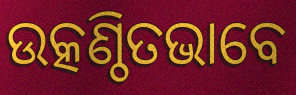
ଉତ୍କଣ୍ଠିତଭାବେ